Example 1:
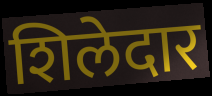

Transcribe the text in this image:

शिलेदार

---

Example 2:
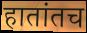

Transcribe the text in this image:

हातांतच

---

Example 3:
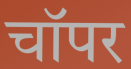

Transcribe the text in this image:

चॉपर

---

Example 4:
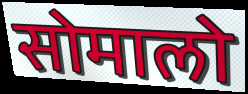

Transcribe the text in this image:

सोमालो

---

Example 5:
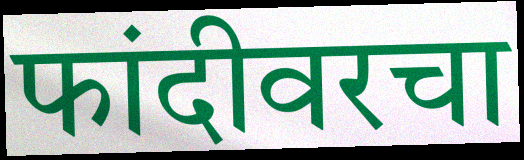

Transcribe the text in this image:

फांदीवरचा